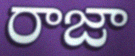
రాజా